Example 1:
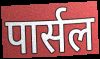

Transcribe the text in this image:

पार्सल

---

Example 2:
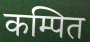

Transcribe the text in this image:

कम्पित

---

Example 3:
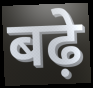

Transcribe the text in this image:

बढ़े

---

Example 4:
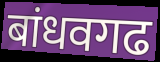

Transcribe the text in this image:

बांधवगढ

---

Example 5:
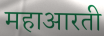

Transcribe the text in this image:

महाआरती